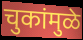
चुकांमुळे